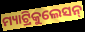
ମ୍ୟାଟ୍ରିକୁଲେସନ୍